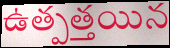
ఉత్పత్తయిన